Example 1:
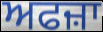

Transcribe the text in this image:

ਅਫਜ਼ਾ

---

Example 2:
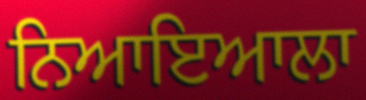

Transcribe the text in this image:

ਨਿਆਇਆਲਾ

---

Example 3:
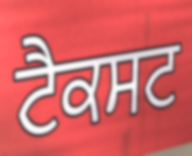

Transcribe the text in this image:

ਟੈਕਸਟ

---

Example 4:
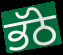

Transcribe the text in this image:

ਭੱਠੇ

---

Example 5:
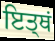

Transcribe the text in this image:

ਇਤ੍ਥਂ